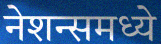
नेशन्समध्ये